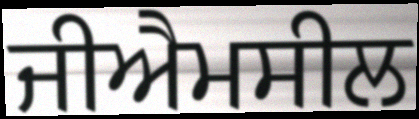
ਜੀਐਮਸੀਲ